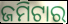
ଜମିଟାର